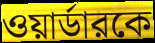
ওয়ার্ডারকে